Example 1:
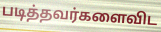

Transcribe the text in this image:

படித்தவர்களைவிட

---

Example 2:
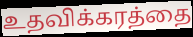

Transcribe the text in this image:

உதவிக்கரத்தை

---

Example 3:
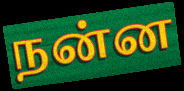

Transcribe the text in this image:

நன்ன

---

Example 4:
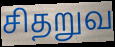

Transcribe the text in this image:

சிதறுவ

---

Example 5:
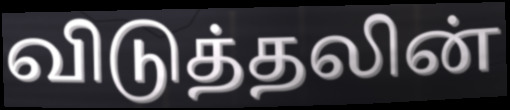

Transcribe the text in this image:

விடுத்தலின்